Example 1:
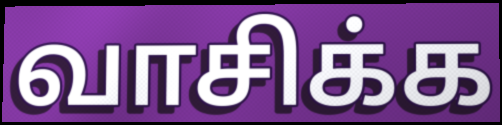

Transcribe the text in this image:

வாசிக்க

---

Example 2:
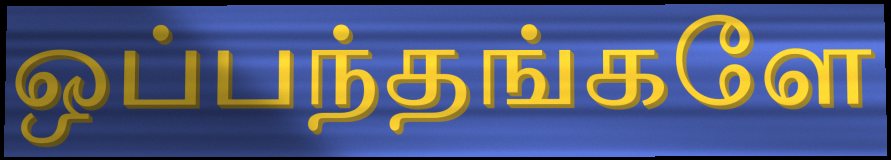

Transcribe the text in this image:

ஒப்பந்தங்களே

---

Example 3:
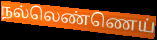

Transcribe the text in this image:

நல்லெண்ணெய்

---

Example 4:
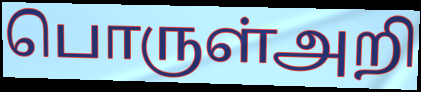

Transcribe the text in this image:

பொருள்அறி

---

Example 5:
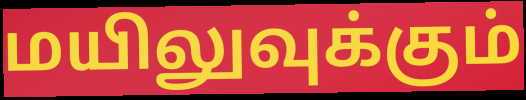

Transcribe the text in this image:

மயிலுவுக்கும்